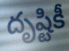
దృష్టికీ